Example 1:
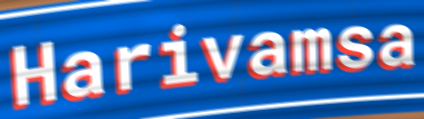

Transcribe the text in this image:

Harivamsa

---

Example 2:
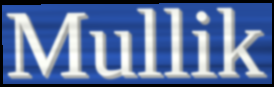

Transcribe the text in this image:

Mullik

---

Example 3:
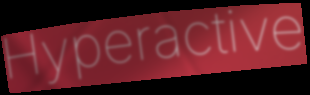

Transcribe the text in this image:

Hyperactive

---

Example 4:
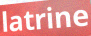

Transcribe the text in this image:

latrine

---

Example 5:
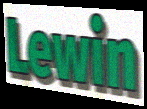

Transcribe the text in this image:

Lewin